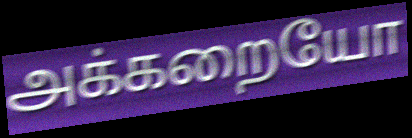
அக்கறையோ